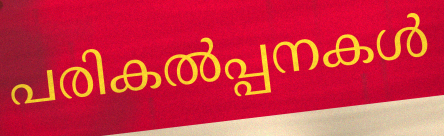
പരികൽപ്പനകൾ